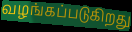
வழங்கப்படுகிறது